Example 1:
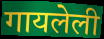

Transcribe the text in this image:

गायलेली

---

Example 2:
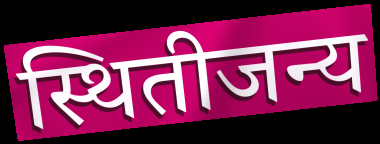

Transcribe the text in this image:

स्थितीजन्य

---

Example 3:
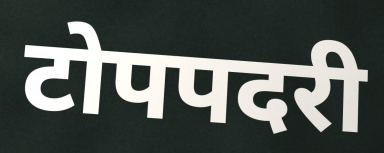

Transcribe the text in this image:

टोपपदरी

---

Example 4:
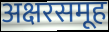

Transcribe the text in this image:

अक्षरसमूह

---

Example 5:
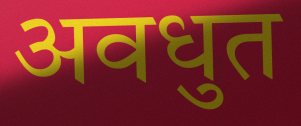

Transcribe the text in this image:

अवधुत